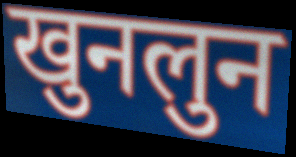
खुनलुन